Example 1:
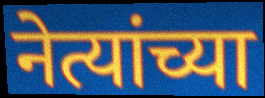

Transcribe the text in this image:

नेत्यांच्या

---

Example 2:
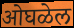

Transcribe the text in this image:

ओघळेल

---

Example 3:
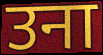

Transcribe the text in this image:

उना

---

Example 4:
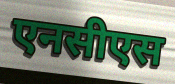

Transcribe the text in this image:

एनसीएस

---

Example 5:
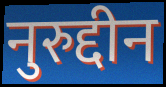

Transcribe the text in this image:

नुरुद्दीन